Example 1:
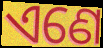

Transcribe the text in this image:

ଏଣେ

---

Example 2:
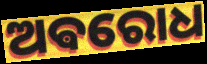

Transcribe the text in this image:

ଅଵରୋଧ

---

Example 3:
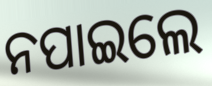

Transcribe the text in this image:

ନପାଇଲେ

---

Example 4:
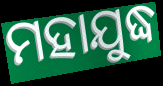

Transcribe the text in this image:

ମହାଯୁଦ୍ଧ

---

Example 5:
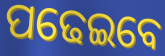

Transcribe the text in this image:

ପଢେଇବେ